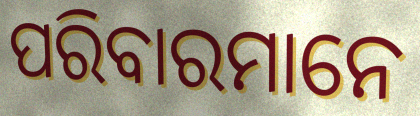
ପରିବାରମାନେ